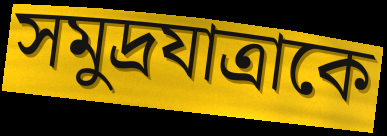
সমুদ্রযাত্রাকে